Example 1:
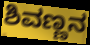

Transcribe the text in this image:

ಶಿವಣ್ಣನ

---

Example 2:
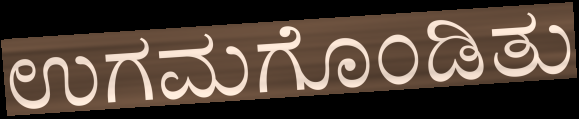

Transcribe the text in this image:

ಉಗಮಗೊಂಡಿತು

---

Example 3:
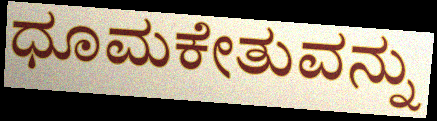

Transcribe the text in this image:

ಧೂಮಕೇತುವನ್ನು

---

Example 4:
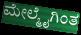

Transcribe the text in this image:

ಮೇಲ್ಮೈಗಿಂತ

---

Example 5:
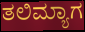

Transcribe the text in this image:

ತಲಿಮ್ಯಾಗ